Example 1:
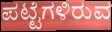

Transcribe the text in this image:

ಪಟ್ಟೆಗಳಿರುವ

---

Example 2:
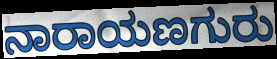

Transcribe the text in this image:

ನಾರಾಯಣಗುರು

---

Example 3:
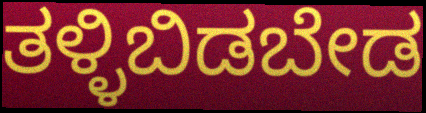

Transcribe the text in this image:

ತಳ್ಳಿಬಿಡಬೇಡ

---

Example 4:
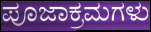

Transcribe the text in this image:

ಪೂಜಾಕ್ರಮಗಳು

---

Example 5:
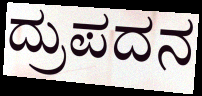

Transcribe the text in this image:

ದ್ರುಪದನ